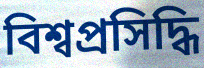
বিশ্বপ্ৰসিদ্ধি